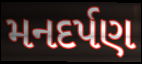
મનદર્પણ